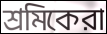
শ্রমিকেরা